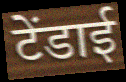
टेंडाई